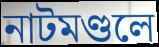
নাটমণ্ডলে